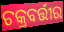
ଚକ୍ରବର୍ତ୍ତୀର